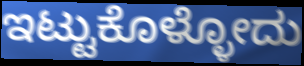
ಇಟ್ಟುಕೊಳ್ಳೋದು